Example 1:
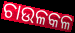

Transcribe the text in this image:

ଚାଉଳକଳ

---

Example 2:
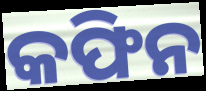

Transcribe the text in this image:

କଫିନ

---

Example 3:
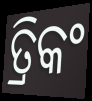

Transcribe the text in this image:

ତ୍ରିକଂ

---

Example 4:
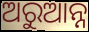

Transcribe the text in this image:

ଅରୁଆନ୍ନ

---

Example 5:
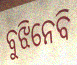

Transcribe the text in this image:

ବୁଝିନେବି